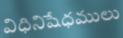
విధినిషేధములు